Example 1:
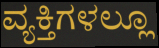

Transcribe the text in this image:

ವ್ಯಕ್ತಿಗಳಲ್ಲೂ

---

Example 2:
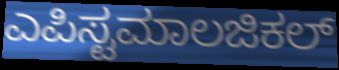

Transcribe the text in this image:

ಎಪಿಸ್ಟಮಾಲಜಿಕಲ್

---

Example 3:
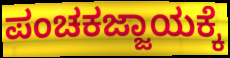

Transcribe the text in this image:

ಪಂಚಕಜ್ಜಾಯಕ್ಕೆ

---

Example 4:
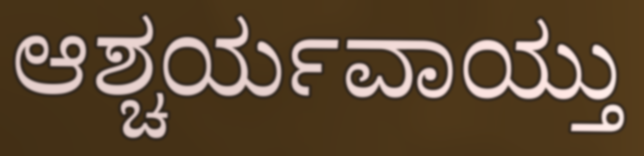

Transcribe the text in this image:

ಆಶ್ಚರ್ಯವಾಯ್ತು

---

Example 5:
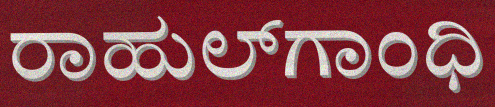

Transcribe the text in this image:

ರಾಹುಲ್‌ಗಾಂಧಿ